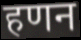
हणन